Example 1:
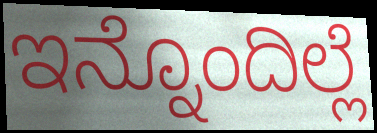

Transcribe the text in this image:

ಇನ್ನೊಂದಿಲ್ಲೆ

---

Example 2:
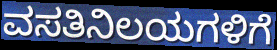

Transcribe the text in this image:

ವಸತಿನಿಲಯಗಳಿಗೆ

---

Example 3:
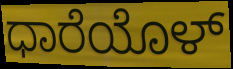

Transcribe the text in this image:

ಧಾರೆಯೊಳ್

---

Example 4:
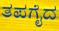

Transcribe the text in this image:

ತಪಗೈದ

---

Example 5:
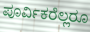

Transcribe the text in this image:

ಪೂರ್ವಿಕರೆಲ್ಲರೂ